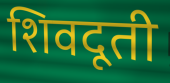
शिवदूती